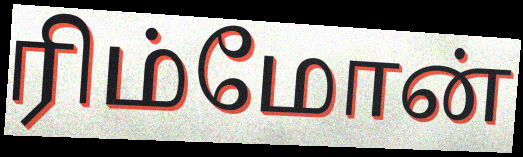
ரிம்மோன்